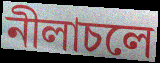
নীলাচলে